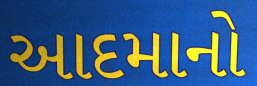
આદમાનો